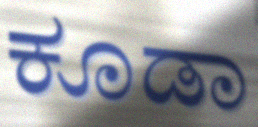
ಕೂಡಾ